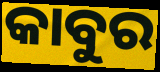
କାବୁର